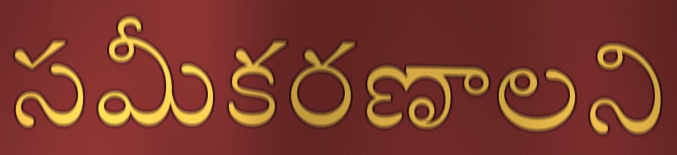
సమీకరణాలని